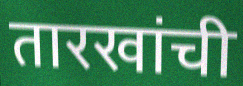
तारखांची